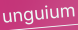
unguium